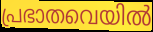
പ്രഭാതവെയിൽ